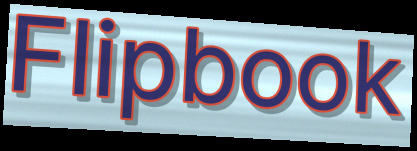
Flipbook